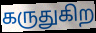
கருதுகிற